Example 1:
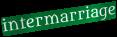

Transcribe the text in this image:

intermarriage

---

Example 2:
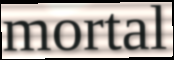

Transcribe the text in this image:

mortal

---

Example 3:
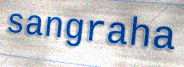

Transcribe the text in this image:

sangraha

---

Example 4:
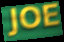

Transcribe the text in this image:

JOE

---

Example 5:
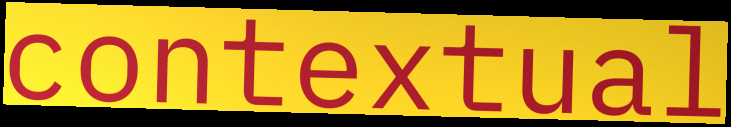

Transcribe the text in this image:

contextual